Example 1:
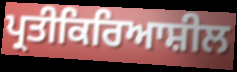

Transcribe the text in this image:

ਪ੍ਰਤੀਕਿਰਿਆਸ਼ੀਲ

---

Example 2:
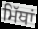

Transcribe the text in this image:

ਮਿੱਥਾਂ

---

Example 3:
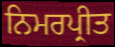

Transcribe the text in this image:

ਨਿਮਰਪ੍ਰੀਤ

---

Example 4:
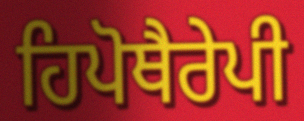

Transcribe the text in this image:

ਹਿਪੋਥੈਰੇਪੀ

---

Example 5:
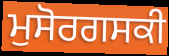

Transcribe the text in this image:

ਮੁਸੋਰਗਸਕੀ